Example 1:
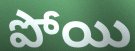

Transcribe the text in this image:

పోయి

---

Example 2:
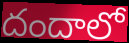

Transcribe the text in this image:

దందాలో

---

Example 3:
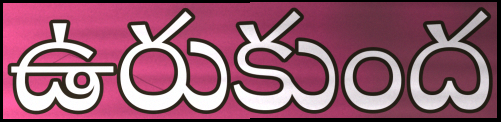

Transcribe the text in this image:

ఉరుకుంద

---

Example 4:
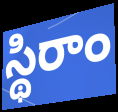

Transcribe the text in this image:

స్థిరాం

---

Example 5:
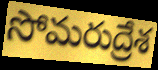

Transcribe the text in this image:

సోమరుద్రేశ